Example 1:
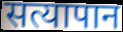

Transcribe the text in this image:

सत्यापान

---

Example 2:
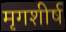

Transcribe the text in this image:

मृगशीर्ष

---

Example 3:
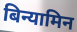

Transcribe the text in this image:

बिन्यामिन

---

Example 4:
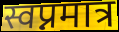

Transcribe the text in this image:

स्वप्नमात्र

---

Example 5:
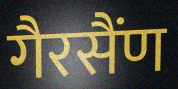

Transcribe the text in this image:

गैरसैंण